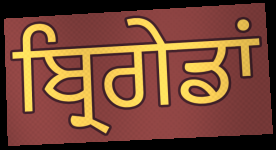
ਬ੍ਰਿਗੇਡਾਂ